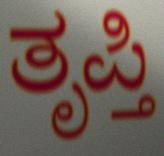
ತೃಪ್ತಿ